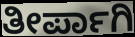
ತೀರ್ಪಾಗಿ